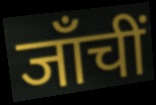
जाँचीं